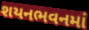
શયનભવનમાં